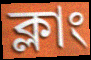
ক্লাং